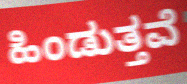
ಹಿಂಡುತ್ತವೆ